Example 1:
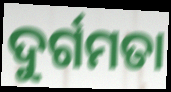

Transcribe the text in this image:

ଦୁର୍ଗମତା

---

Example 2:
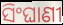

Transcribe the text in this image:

ସିଂଘାଣୀ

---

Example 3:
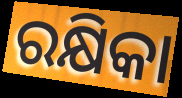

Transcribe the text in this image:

ରକ୍ଷିକା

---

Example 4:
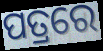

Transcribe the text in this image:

ପତ୍ରରେ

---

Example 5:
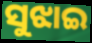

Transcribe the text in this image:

ସୁଝାଇ